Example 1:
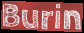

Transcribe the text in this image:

Burin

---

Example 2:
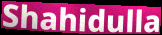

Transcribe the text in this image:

Shahidulla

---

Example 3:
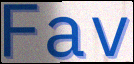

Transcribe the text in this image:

Fav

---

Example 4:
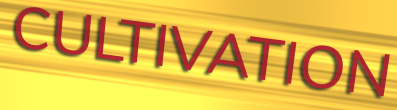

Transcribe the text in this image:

CULTIVATION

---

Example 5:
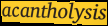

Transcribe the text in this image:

acantholysis